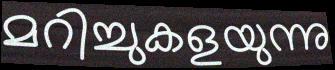
മറിച്ചുകളയുന്നു